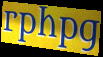
rphpg